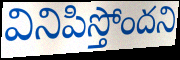
వినిపిస్తోందని